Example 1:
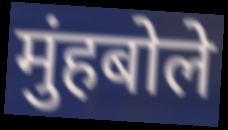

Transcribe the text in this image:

मुंहबोले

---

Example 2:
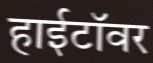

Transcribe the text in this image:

हाईटॉवर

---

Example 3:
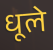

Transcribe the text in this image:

धूले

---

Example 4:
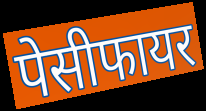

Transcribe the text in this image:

पेसीफायर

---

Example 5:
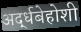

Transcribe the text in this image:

अर्द्धबेहोशी